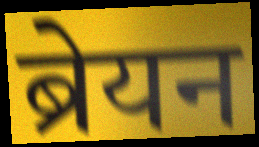
ब्रेयन